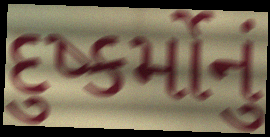
દુષ્કર્મોનું